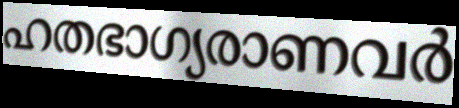
ഹതഭാഗ്യരാണവർ